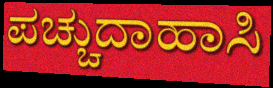
ಪಚ್ಚುದಾಹಾಸಿ